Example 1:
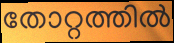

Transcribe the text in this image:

തോറ്റത്തിൽ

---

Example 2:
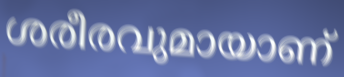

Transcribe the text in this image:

ശരീരവുമായാണ്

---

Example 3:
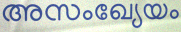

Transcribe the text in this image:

അസംഖ്യേയം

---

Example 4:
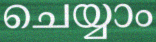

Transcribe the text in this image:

ചെയ്യാം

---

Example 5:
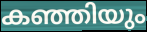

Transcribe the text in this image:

കഞ്ഞിയും